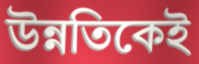
উন্নতিকেই